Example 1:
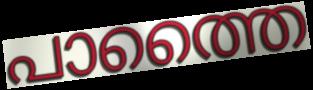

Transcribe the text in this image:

പാത്തൈ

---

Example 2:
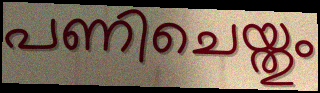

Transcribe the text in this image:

പണിചെയ്തും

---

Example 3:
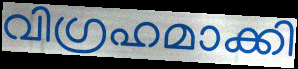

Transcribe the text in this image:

വിഗ്രഹമാക്കി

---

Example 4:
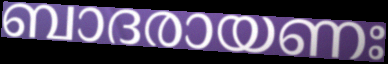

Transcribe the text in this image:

ബാദരായണഃ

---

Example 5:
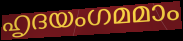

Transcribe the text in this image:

ഹൃദയംഗമമാം